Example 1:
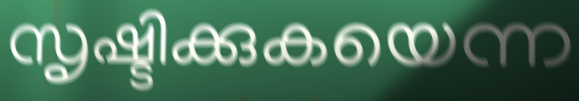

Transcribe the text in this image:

സൃഷ്ടിക്കുകയെന്ന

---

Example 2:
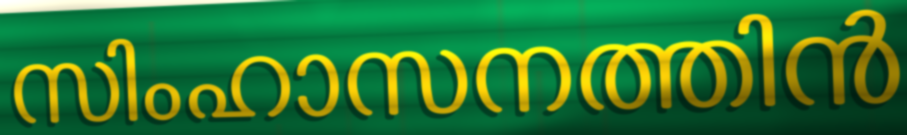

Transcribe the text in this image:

സിംഹാസനത്തിൻ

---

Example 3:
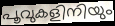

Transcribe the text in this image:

പൂവുകളിനിയും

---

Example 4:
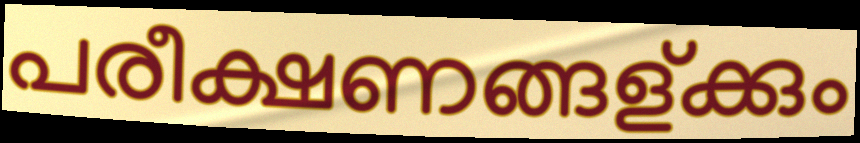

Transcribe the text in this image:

പരീക്ഷണങ്ങള്ക്കും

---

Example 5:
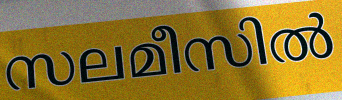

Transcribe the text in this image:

സലമീസിൽ